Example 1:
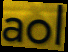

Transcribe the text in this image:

aol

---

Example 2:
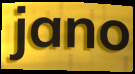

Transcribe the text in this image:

jano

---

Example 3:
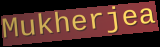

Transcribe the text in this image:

Mukherjea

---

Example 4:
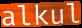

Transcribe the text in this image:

alkul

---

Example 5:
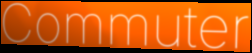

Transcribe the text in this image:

Commuter